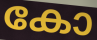
കോ